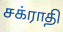
சக்ராதி